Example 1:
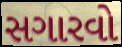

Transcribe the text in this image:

સગારવો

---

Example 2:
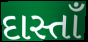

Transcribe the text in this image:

દાસ્તાઁ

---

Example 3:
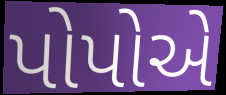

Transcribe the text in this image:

પોપોએ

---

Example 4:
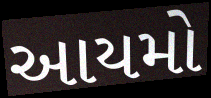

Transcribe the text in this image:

આયમો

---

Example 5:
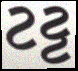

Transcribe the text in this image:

ટટ્ટ